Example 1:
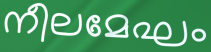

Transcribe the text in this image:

നീലമേഘം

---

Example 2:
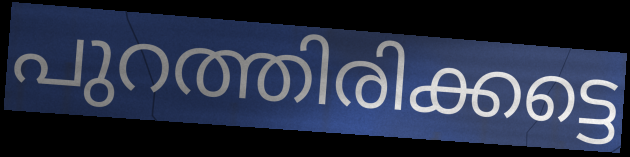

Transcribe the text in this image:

പുറത്തിരിക്കട്ടെ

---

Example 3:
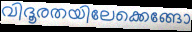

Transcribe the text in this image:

വിദൂരതയിലേക്കെങ്ങോ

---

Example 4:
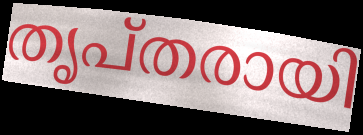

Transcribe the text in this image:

തൃപ്തരായി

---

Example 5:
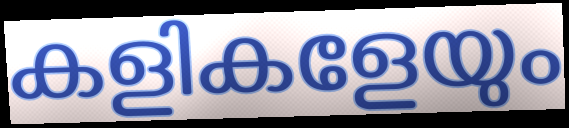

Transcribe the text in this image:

കളികളേയും